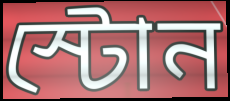
স্টোন